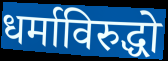
धर्माविरुद्धो